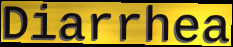
Diarrhea